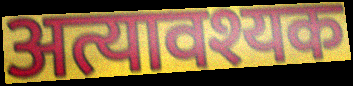
अत्यावश्यक